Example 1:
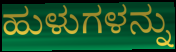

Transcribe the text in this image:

ಹುಳುಗಳನ್ನು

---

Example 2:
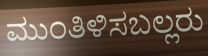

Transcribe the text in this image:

ಮುಂತಿಳಿಸಬಲ್ಲರು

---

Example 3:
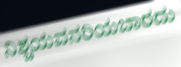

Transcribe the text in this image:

ನಿಶ್ಚಯವನರಿಯಬಾರದು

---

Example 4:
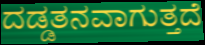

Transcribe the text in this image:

ದಡ್ಡತನವಾಗುತ್ತದೆ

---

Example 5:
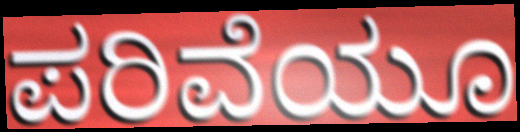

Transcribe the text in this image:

ಪರಿವೆಯೂ